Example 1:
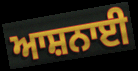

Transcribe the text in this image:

ਆਸ਼ਨਾਈ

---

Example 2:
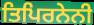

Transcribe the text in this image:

ਤਿਪਿਰਨੇਨੀ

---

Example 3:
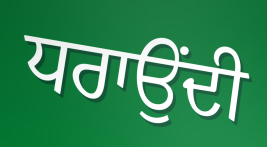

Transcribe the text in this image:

ਧਰਾਉਂਦੀ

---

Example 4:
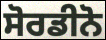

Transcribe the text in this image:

ਸੋਰਡੀਨੋ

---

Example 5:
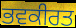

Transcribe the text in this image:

ਭਵਕੀਰਤ